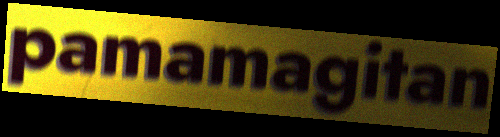
pamamagitan